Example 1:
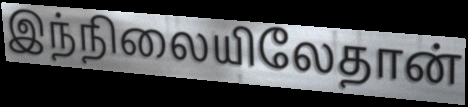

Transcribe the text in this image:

இந்நிலையிலேதான்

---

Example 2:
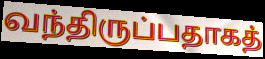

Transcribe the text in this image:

வந்திருப்பதாகத்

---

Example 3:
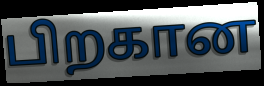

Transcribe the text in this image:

பிறகான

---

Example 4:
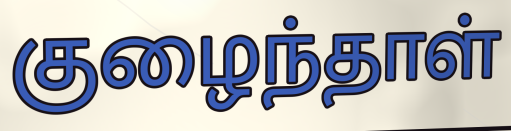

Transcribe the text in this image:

குழைந்தாள்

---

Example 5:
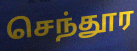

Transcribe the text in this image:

செந்தூர